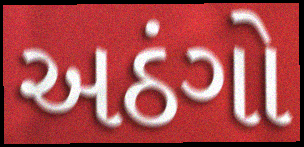
અઠંગો